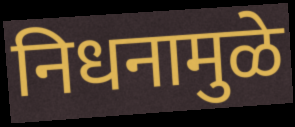
निधनामुळे